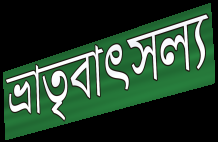
ভ্রাতৃবাৎসল্য